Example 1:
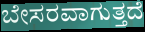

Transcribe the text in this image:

ಬೇಸರವಾಗುತ್ತದೆ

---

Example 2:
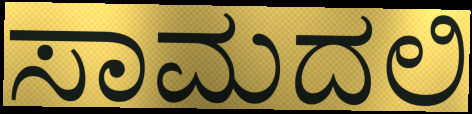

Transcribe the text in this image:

ಸಾಮದಲಿ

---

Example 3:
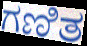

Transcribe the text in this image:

ಗಣಿತ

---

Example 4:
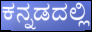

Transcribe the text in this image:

ಕನ್ನಡದಲ್ಲಿ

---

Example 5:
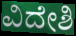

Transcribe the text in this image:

ವಿದೇಶಿ